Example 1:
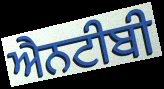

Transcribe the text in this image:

ਐਨਟੀਬੀ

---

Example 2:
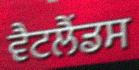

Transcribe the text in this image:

ਵੈਟਲੈਂਡਸ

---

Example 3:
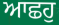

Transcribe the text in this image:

ਆਛਹੁ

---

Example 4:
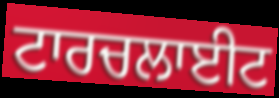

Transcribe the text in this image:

ਟਾਰਚਲਾਈਟ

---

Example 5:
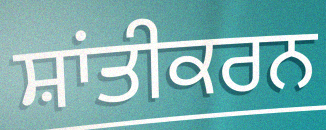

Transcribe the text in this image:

ਸ਼ਾਂਤੀਕਰਨ